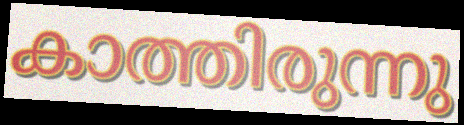
കാത്തിരുന്നു